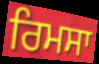
ਰਿਮਸਾ